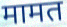
मामत